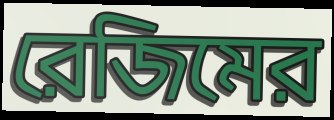
রেজিমের